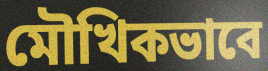
মৌখিকভাবে